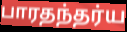
பாரதந்தர்ய